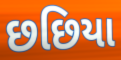
છછિયા